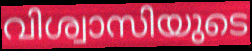
വിശ്വാസിയുടെ